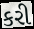
કરી